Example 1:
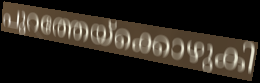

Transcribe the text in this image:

പുറത്തേയ്ക്കൊഴുകി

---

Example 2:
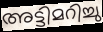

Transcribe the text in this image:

അട്ടിമറിച്ചു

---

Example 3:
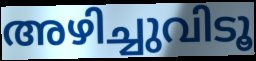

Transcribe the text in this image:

അഴിച്ചുവിടൂ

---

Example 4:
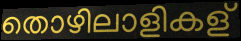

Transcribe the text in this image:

തൊഴിലാളികള്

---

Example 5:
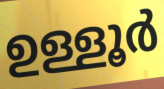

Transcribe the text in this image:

ഉള്ളൂർ